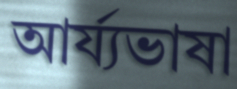
আর্য্যভাষা